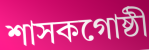
শাসকগোষ্ঠী